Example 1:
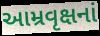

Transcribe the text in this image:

આમ્રવૃક્ષનાં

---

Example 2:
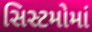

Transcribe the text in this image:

સિસ્ટમોમાં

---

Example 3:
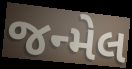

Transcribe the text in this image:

જન્મેલ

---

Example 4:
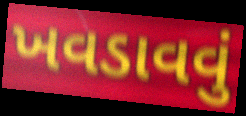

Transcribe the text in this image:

ખવડાવવું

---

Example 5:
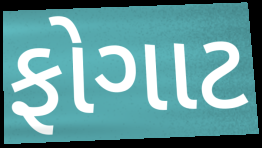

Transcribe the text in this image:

ફોગાટ